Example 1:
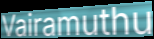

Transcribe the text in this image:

Vairamuthu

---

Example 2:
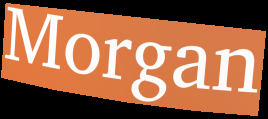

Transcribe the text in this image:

Morgan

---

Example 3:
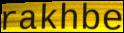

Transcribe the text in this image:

rakhbe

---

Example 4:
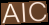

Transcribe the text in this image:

AIC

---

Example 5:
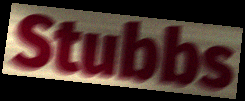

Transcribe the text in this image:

Stubbs